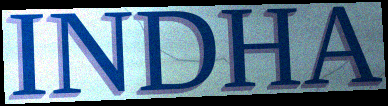
INDHA